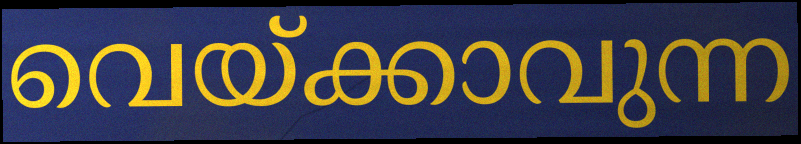
വെയ്ക്കാവുന്ന